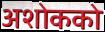
अशोकको